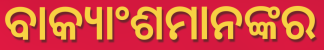
ବାକ୍ୟାଂଶମାନଙ୍କର